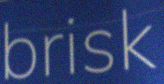
brisk